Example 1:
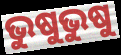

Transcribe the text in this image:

ଭୁଷୁଭୁଷୁ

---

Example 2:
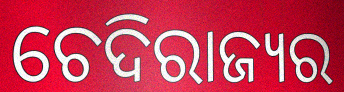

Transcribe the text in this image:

ଚେଦିରାଜ୍ୟର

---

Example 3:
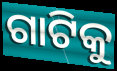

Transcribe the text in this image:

ଗାଟିକୁ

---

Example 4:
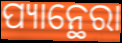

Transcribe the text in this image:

ପ୍ୟାନ୍ଥେରା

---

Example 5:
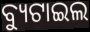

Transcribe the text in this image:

ବ୍ୟୁଟାଇଲ